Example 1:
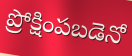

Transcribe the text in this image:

ప్రోక్షింపబడెనో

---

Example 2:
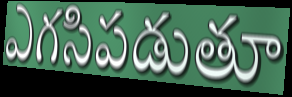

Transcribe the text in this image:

ఎగసిపడుతూ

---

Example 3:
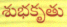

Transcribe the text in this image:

శుభకృతు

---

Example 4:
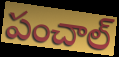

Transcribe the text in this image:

పంచాల్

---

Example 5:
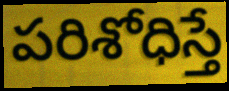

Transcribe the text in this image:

పరిశోధిస్తే